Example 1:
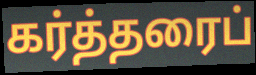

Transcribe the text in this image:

கர்த்தரைப்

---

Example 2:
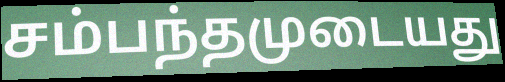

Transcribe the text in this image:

சம்பந்தமுடையது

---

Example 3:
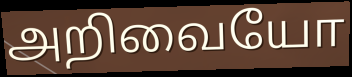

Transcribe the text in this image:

அறிவையோ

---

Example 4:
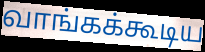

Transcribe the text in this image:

வாங்கக்கூடிய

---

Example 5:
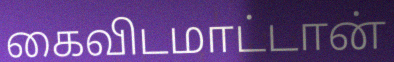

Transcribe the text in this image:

கைவிடமாட்டான்